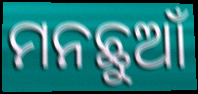
ମନଛୁଆଁ